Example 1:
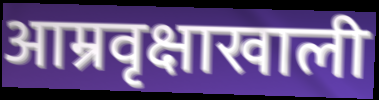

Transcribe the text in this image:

आम्रवृक्षाखाली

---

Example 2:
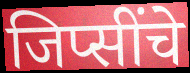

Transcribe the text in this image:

जिप्सींचे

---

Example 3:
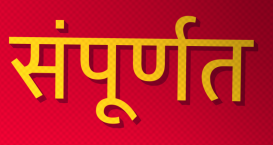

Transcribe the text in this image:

संपूर्णत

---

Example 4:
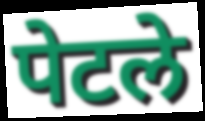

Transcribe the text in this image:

पेटले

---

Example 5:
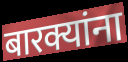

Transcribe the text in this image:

बारक्यांना